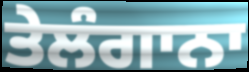
ਤੇਲੰਗਾਨਾ